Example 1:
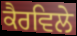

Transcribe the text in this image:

ਕੈਰਵਿਲੇ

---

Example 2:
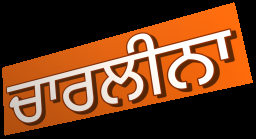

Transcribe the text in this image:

ਚਾਰਲੀਨਾ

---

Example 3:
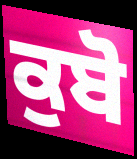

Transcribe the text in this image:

ਕੁਬੋ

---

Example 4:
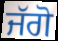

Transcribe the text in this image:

ਜੱਗੋ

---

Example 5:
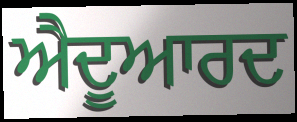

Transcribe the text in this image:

ਐਦੂਆਰਦ